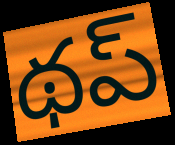
థప్